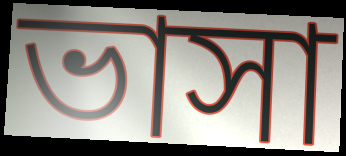
ভাসা